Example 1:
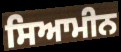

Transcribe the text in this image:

ਸਿਆਮੀਨ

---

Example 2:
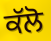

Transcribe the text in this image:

ਕੱਲੋ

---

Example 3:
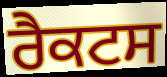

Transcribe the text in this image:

ਰੈਕਟਸ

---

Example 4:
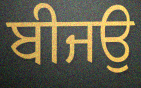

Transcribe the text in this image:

ਬੀਜਉ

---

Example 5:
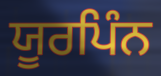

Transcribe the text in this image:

ਯੂਰਪਿੰਨ